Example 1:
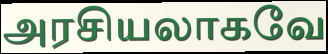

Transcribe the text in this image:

அரசியலாகவே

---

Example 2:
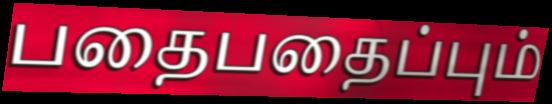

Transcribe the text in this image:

பதைபதைப்பும்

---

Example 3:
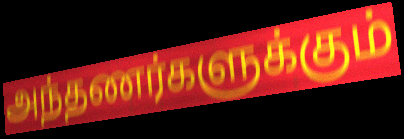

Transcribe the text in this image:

அந்தணர்களுக்கும்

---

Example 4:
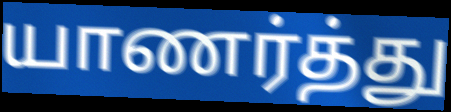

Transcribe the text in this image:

யாணர்த்து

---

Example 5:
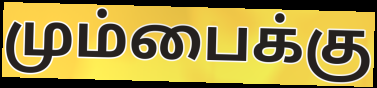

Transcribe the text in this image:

மும்பைக்கு